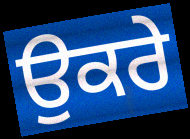
ਉਕਰੇ